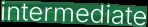
intermediate